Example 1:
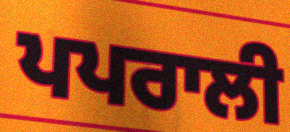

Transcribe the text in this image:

ਪਪਰਾਲੀ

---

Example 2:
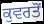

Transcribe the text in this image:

ਕੁਵਰਤੋਂ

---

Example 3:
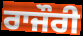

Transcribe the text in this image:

ਰਾਜੌਰੀ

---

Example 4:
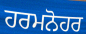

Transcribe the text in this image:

ਹਰਮਨੋਹਰ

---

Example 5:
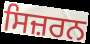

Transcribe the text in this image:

ਸਿਜ਼ਰਨ